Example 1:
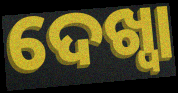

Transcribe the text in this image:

ଦେଖ୍ବା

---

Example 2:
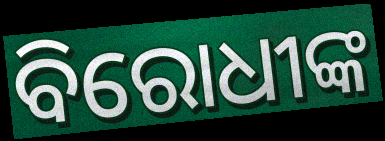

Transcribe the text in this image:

ବିରୋଧୀଙ୍କ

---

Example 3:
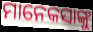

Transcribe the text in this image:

ମାନେକସାଙ୍କୁ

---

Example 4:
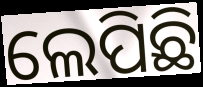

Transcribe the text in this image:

ଲେପିଛି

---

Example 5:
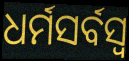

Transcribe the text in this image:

ଧର୍ମସର୍ବସ୍ୱ